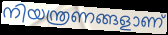
നിയന്ത്രണങ്ങളാണ്